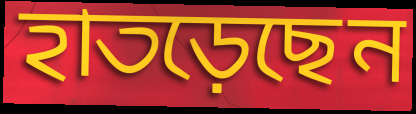
হাতড়েছেন